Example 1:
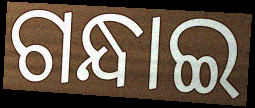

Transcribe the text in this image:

ଗନ୍ଧାଇ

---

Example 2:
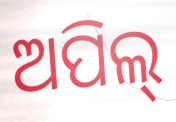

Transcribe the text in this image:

ଅପିଲ୍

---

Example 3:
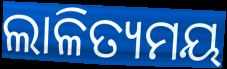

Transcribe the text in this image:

ଲାଳିତ୍ୟମୟ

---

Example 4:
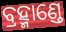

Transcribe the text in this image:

ବ୍ରହ୍ମାଣ୍ଡେ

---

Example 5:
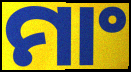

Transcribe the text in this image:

ମାଂ